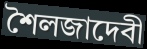
শৈলজাদেবী